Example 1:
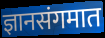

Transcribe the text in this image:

ज्ञानसंगमात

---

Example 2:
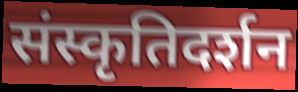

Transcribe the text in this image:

संस्कृतिदर्शन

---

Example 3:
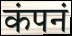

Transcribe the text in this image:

कंपनं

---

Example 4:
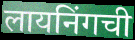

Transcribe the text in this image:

लायनिंगची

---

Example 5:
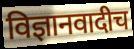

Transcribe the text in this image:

विज्ञानवादीच